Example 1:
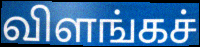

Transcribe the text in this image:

விளங்கச்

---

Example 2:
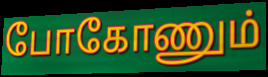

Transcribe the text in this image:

போகோணும்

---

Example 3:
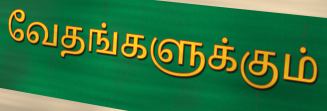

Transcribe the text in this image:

வேதங்களுக்கும்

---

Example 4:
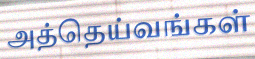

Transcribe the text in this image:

அத்தெய்வங்கள்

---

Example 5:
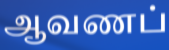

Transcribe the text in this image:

ஆவணப்